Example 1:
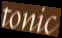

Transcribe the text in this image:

tonic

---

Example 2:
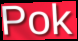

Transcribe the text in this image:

Pok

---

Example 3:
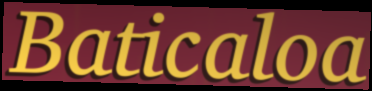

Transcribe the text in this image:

Baticaloa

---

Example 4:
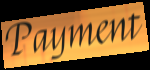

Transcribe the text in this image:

Payment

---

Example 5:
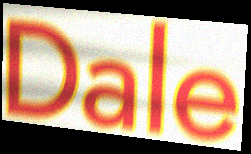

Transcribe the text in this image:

Dale